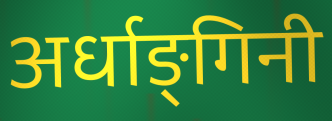
अर्धाङ्गिनी